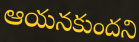
ఆయనకుందని